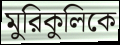
মুরিকুলিকে